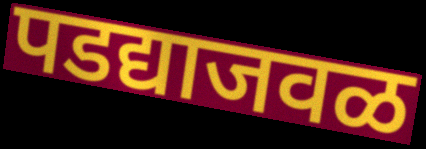
पडद्याजवळ